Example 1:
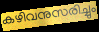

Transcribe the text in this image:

കഴിവനുസരിച്ചും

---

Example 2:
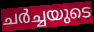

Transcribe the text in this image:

ചർച്ചയുടെ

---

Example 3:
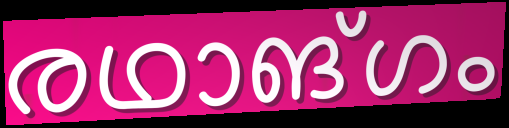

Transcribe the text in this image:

രഥാങ്ഗം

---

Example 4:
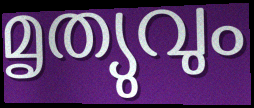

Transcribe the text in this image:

മൃത്യുവും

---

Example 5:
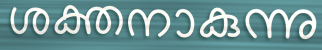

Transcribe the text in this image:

ശക്തനാകുന്നു